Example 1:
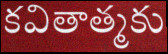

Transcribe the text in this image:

కవితాత్మకు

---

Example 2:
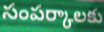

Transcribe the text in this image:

సంపర్కాలకు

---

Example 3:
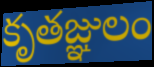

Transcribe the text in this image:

కృతజ్ఞులం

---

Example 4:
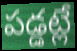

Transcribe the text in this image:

పడ్డట్లే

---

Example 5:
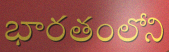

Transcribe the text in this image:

భారతంలోని